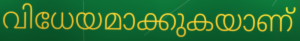
വിധേയമാക്കുകയാണ്